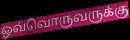
ஒவ்வொருவருக்கு